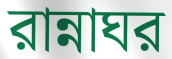
রান্নাঘর